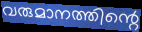
വരുമാനത്തിന്റെ